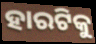
ହାରଟିକୁ